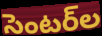
సెంటర్‌ల